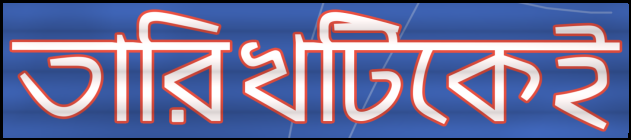
তারিখটিকেই